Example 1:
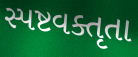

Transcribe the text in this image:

સ્પષ્ટવક્તૃતા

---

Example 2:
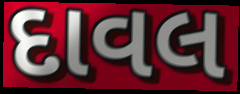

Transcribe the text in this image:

દાવલ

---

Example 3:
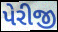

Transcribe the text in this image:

પેરીજી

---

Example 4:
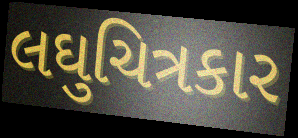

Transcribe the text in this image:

લઘુચિત્રકાર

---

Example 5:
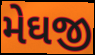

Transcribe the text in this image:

મેઘજી